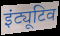
इंट्यूटिव